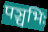
पञ्चभिः